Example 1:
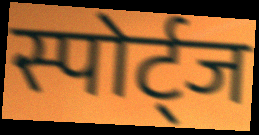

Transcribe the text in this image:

स्पोर्ट्ज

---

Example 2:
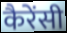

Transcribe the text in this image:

कैरेंसी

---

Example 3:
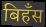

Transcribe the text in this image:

बिहँस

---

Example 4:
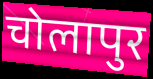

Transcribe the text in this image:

चोलापुर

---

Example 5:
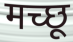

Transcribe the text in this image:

मच्छू